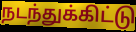
நடந்துக்கிட்டு